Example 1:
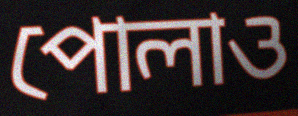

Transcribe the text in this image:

পোলাও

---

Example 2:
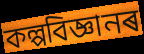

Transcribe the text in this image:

কল্পবিজ্ঞানৰ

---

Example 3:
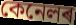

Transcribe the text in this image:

কেনেলৰ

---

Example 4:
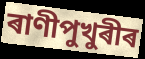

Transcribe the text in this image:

ৰাণীপুখুৰীৰ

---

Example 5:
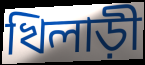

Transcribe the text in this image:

খিলাড়ী